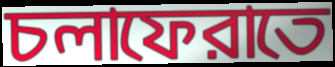
চলাফেরাতে